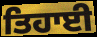
ਤਿਹਾਈ